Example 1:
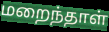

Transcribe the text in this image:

மறைந்தாள்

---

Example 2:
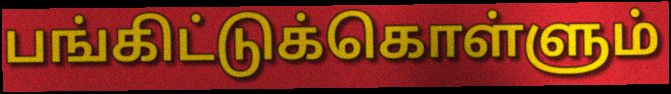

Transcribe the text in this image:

பங்கிட்டுக்கொள்ளும்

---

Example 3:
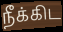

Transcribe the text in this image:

நீக்கிட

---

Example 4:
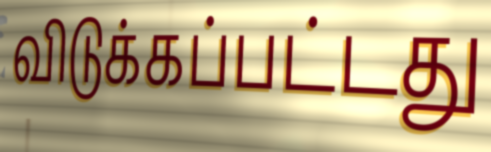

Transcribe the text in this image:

விடுக்கப்பட்டது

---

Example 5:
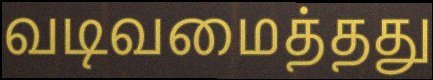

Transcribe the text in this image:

வடிவமைத்தது